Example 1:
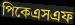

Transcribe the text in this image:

পিকেএসএফ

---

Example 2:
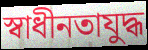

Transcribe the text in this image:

স্বাধীনতাযুদ্ধ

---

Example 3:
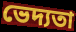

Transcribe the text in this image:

ভেদ্যতা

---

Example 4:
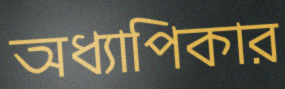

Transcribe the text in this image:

অধ্যাপিকার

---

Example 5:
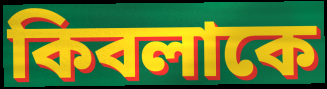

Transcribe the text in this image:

কিবলাকে